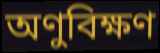
অণুবিক্ষণ